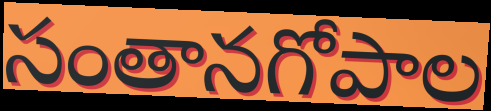
సంతానగోపాల